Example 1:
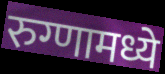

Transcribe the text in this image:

रुग्णामध्ये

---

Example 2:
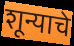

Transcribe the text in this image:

शून्याचे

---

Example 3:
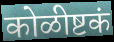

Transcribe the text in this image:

कोळीष्टकं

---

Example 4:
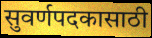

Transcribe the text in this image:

सुवर्णपदकासाठी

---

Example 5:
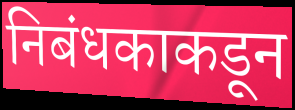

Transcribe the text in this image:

निबंधकाकडून